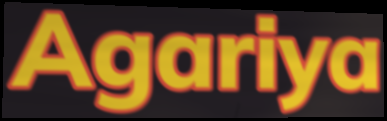
Agariya